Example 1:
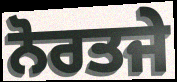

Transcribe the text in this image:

ਨੋਰਤਜੇ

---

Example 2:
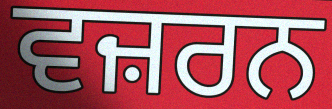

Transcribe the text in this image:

ਵਜ਼ਰਨ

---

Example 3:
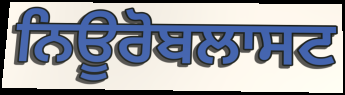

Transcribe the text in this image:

ਨਿਊਰੋਬਲਾਸਟ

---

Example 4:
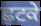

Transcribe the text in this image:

ਛੁਟਕੇ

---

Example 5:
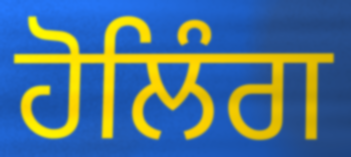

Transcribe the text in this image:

ਹੋਲਿੰਗ